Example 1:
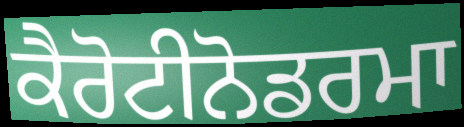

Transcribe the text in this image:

ਕੈਰੋਟੀਨੋਡਰਮਾ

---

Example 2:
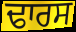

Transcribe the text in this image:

ਢਾਰਸ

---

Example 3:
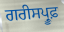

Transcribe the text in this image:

ਗਰੀਸਪ੍ਰੂਫ਼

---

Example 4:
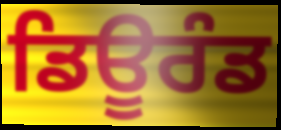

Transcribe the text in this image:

ਡਿਊਰੰਡ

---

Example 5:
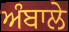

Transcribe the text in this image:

ਅੰਬਾਲੇ